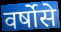
वर्षोसे